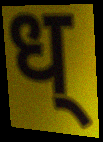
ध्